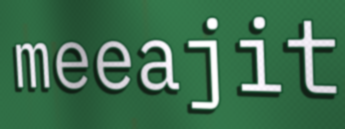
meeajit